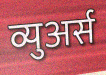
व्युअर्स